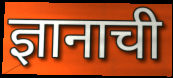
ज्ञानाची